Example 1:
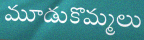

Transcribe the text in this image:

మూడుకొమ్మలు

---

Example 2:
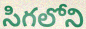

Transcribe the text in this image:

సిగలోని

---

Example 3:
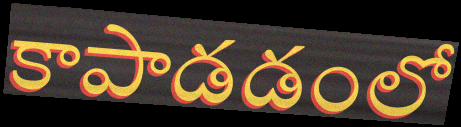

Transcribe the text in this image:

కాపాడడంలో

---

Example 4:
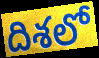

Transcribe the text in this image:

దిశలో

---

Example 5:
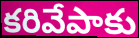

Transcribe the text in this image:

కరివేపాకు